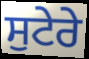
ਸੁਟੇਰੇ